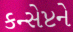
કન્સેપ્ટને